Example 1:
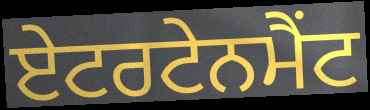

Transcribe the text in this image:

ਏਟਰਟੇਨਮੈਂਟ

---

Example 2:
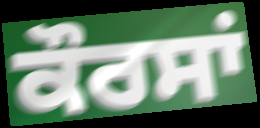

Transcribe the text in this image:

ਕੌਰਸਾਂ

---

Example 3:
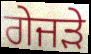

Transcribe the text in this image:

ਗੇਜੜੇ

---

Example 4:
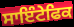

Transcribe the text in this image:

ਸਾਇੰਟੇਫਿਕ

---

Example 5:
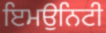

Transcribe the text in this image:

ਇਮਉਨਿਟੀ